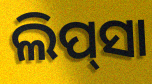
ଲିପ୍‌ସା